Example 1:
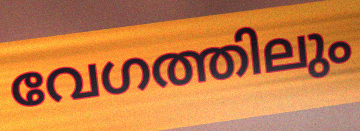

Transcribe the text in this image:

വേഗത്തിലും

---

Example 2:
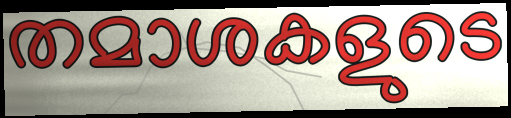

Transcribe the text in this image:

തമാശകളുടെ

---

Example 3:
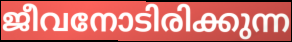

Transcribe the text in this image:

ജീവനോടിരിക്കുന്ന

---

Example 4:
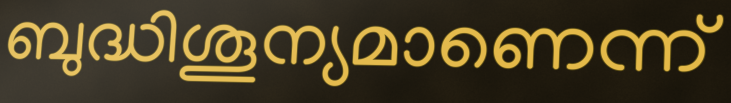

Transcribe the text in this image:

ബുദ്ധിശൂന്യമാണെന്ന്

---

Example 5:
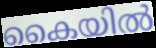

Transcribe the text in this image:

കൈയിൽ